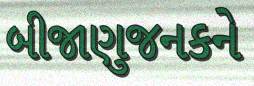
બીજાણુજનકને